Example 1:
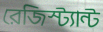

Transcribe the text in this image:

রেজিস্ট্যান্ট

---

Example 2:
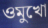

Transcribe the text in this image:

ওমুখো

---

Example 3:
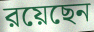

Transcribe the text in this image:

রয়েছেন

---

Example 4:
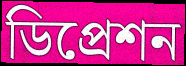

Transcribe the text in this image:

ডিপ্রেশন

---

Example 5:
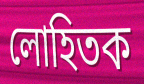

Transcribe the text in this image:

লোহিতক